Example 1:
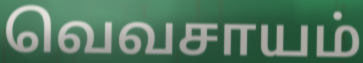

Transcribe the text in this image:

வெவசாயம்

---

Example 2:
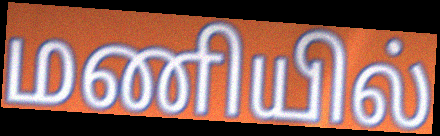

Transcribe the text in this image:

மணியில்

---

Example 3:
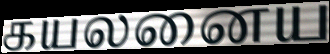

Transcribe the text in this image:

கயலனைய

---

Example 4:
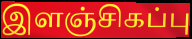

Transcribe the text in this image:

இளஞ்சிகப்பு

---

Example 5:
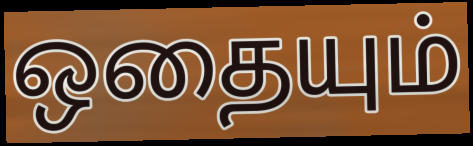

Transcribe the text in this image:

ஒதையும்